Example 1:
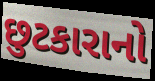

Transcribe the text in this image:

છુટકારાનો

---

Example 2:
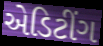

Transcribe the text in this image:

એડિટીંગ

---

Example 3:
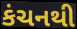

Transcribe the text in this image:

કંચનથી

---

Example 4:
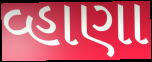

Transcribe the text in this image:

વ્હાણા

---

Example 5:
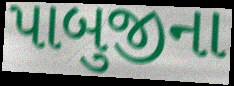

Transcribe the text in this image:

પાબુજીના